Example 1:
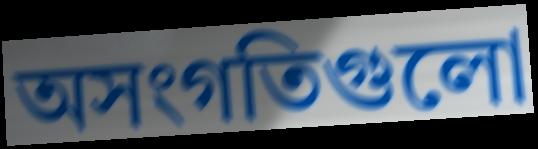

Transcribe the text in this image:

অসংগতিগুলো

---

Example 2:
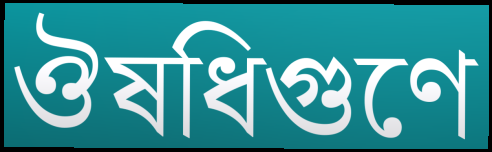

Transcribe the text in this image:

ঔষধিগুণে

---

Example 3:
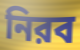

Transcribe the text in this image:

নিরব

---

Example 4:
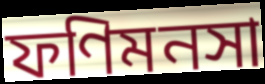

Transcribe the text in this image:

ফণিমনসা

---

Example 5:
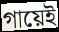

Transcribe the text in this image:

গায়েই